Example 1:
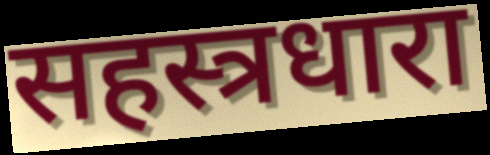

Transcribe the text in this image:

सहस्त्रधारा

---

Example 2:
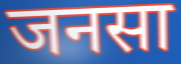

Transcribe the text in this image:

जनसा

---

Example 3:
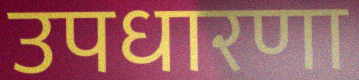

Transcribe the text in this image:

उपधारणा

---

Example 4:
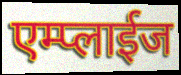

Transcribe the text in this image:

एम्प्लाईज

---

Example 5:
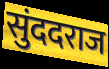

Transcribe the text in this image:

सुंददराज